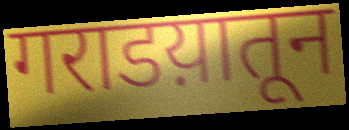
गराडय़ातून